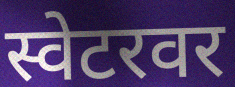
स्वेटरवर